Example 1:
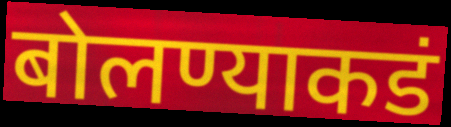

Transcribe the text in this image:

बोलण्याकडं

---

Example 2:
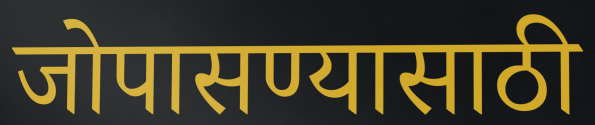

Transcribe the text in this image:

जोपासण्यासाठी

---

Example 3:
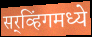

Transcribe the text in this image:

सर्व्हिंगमध्ये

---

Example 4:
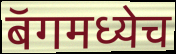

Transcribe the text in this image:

बॅगमध्येच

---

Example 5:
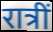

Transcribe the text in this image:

रात्रीं